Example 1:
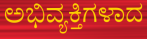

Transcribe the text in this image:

ಅಭಿವ್ಯಕ್ತಿಗಳಾದ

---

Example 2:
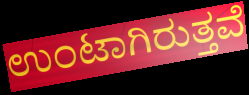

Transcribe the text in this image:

ಉಂಟಾಗಿರುತ್ತವೆ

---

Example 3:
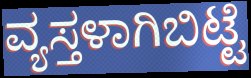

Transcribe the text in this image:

ವ್ಯಸ್ತಳಾಗಿಬಿಟ್ಟೆ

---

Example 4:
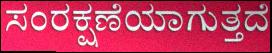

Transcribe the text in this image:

ಸಂರಕ್ಷಣೆಯಾಗುತ್ತದೆ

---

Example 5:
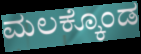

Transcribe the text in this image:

ಮಲಕ್ಕೊಂಡ